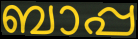
ബാപ്പ